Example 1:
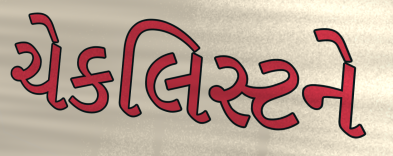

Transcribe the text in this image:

ચેકલિસ્ટને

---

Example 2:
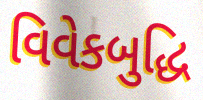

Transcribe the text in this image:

વિવેકબુદ્ધિ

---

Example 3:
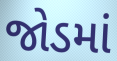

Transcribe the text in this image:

જોડમાં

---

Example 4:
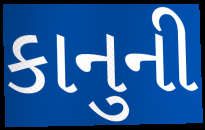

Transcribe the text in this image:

કાનુની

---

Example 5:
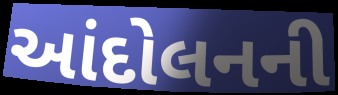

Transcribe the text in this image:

આંદોલનની